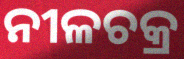
ନୀଳଚକ୍ର